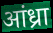
आंध्रा